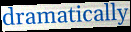
dramatically